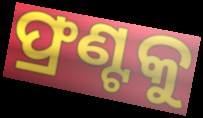
ଫ୍ରଣ୍ଟକୁ